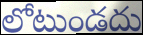
లోటుండదు